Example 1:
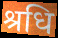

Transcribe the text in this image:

श्रधि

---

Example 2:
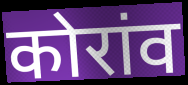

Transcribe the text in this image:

कोरांव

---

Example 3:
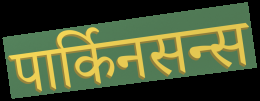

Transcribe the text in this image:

पार्किनसन्स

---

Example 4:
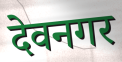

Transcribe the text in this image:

देवनगर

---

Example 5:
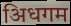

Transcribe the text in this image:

अिधगम